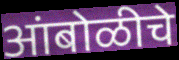
आंबोळीचे